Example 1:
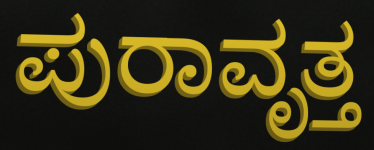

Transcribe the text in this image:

ಪುರಾವೃತ್ತ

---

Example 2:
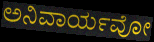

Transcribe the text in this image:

ಅನಿವಾರ್ಯವೋ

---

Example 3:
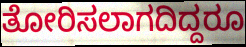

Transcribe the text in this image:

ತೋರಿಸಲಾಗದಿದ್ದರೂ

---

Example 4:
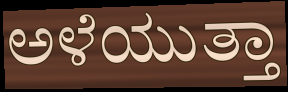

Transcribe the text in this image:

ಅಳೆಯುತ್ತಾ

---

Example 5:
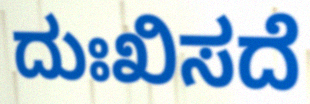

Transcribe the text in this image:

ದುಃಖಿಸದೆ